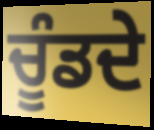
ਚੂੰਡਦੇ